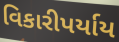
વિકારીપર્યાય